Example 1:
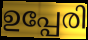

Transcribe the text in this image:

ഉപ്പേരി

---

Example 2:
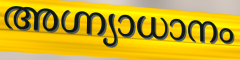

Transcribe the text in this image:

അഗ്ന്യാധാനം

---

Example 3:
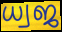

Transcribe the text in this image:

ധ്വജ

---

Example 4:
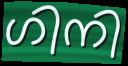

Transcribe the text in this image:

ഗിനി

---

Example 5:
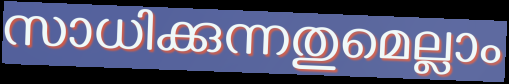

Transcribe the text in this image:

സാധിക്കുന്നതുമെല്ലാം